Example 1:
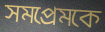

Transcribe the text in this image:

সমপ্রেমকে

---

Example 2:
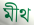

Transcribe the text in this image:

মীথ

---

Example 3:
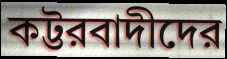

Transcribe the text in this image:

কট্টরবাদীদের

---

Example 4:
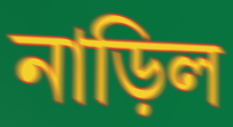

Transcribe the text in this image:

নাড়িল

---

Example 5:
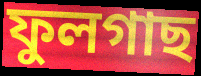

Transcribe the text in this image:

ফুলগাছ